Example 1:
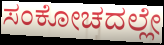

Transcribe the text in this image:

ಸಂಕೋಚದಲ್ಲೇ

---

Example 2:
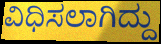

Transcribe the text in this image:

ವಿಧಿಸಲಾಗಿದ್ದು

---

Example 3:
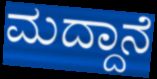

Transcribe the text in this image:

ಮದ್ದಾನೆ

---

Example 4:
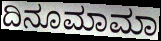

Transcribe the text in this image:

ದಿನೂಮಾಮಾ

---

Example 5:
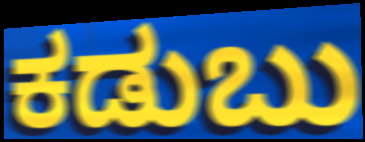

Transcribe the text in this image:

ಕಡುಬು